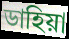
ডাহিয়া